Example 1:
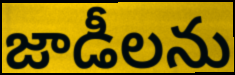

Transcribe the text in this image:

జాడీలను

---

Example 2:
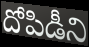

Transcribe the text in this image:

దోపిడీని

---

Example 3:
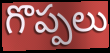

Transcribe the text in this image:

గొప్పలు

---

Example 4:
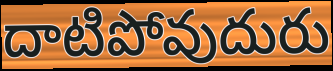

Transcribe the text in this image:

దాటిపోవుదురు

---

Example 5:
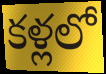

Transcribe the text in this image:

కళ్లలో